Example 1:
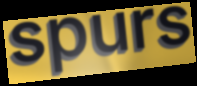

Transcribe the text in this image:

spurs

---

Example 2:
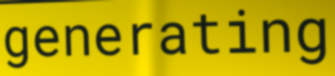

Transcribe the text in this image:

generating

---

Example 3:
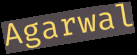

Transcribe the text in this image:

Agarwal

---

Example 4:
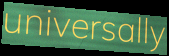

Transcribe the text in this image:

universally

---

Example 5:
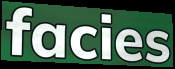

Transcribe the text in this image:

facies